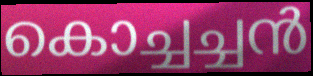
കൊച്ചച്ചൻ